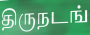
திருநடங்